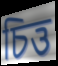
চিত্ত